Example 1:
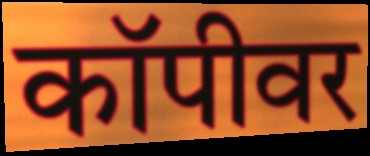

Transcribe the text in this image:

कॉपीवर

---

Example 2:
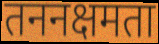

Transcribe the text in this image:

तननक्षमता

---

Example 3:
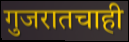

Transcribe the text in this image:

गुजरातचाही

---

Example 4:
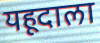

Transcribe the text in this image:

यहूदाला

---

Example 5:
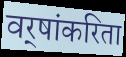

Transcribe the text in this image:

वर्षांकरिता